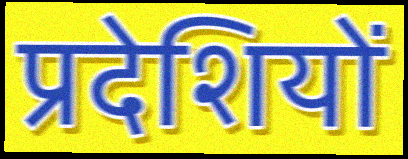
प्रदेशियों